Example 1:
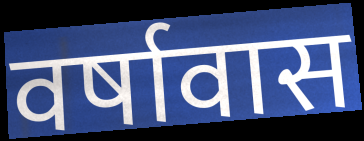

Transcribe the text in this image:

वर्षावास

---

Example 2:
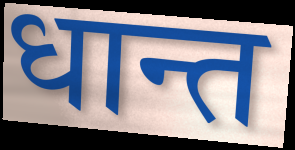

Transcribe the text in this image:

धान्त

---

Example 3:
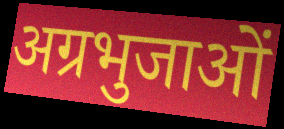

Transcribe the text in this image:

अग्रभुजाओं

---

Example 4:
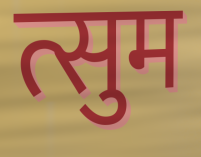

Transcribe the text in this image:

त्सुम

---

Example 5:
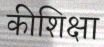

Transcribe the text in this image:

कीशिक्षा